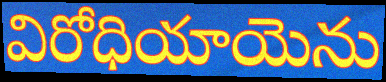
విరోధియాయెను